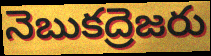
నెబుకద్రెజరు